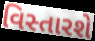
વિસ્તારશે